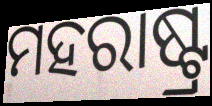
ମହରାଷ୍ଟ୍ର